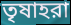
তৃষাহরা